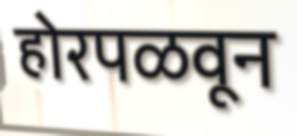
होरपळवून